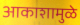
आकाशामुळे